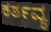
ಕರ್ತವ್ಯ